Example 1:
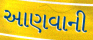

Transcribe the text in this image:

આણવાની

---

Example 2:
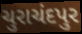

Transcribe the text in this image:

ચુરાચંદપુર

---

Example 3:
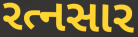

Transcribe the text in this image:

રત્નસાર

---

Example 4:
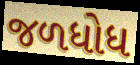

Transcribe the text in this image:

જળધોધ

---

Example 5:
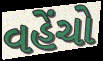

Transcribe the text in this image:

વહેંચો